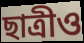
ছাত্রীও